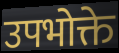
उपभोक्ते